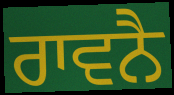
ਰਾਵਨੈ